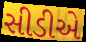
સીડીએ